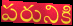
పరునికి